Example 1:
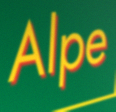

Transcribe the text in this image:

Alpe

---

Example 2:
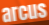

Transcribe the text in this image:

arcus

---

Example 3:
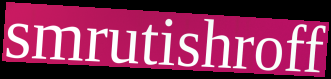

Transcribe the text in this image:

smrutishroff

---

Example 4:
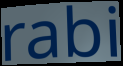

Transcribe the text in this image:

rabi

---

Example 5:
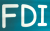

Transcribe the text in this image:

FDI